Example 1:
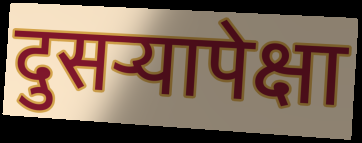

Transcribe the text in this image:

दुसऱ्यापेक्षा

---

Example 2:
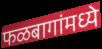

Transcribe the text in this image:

फळबागांमध्ये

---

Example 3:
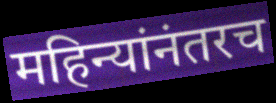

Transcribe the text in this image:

महिन्यांनंतरच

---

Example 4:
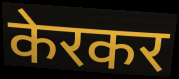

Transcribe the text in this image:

केरकर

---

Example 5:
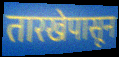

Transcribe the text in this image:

तारखेपासून